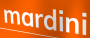
mardini